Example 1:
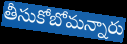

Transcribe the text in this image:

తీసుకోబోమన్నారు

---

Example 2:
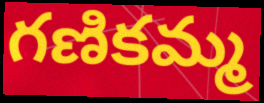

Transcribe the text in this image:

గణికమ్మ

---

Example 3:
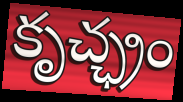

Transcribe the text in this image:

కృచ్ఛ్రం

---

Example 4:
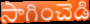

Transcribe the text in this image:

సాగించెడి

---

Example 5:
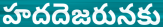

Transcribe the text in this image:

హదదెజరునకు